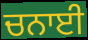
ਚਨਾਈ